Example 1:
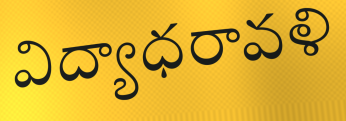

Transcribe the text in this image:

విద్యాధరావళి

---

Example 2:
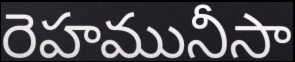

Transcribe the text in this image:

రెహమునీసా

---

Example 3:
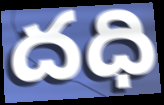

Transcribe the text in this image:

దధి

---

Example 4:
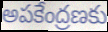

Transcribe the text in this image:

అపకేంద్రణకు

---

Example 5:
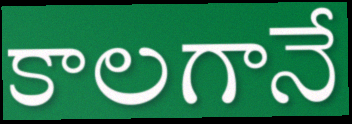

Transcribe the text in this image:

కాలగానే